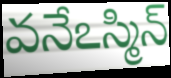
వనేఽస్మిన్